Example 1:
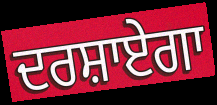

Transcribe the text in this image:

ਦਰਸ਼ਾਏਗਾ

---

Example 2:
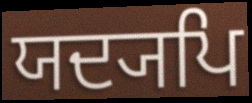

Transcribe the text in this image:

ਯਦ੍ਯਪਿ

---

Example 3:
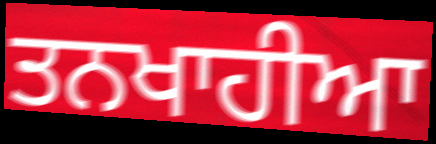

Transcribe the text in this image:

ਤਨਖਾਹੀਆ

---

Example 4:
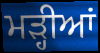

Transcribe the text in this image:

ਮੜ੍ਹੀਆਂ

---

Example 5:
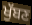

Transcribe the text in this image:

ਖੁੱਬਣ